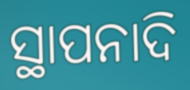
ସ୍ଥାପନାଦି